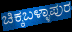
ಚಿಕ್ಕಬಳ್ಳಾಪುರ